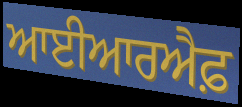
ਆਈਆਰਐਫ਼